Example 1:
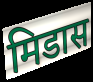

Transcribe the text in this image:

मिडास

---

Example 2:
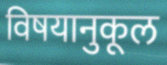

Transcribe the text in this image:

विषयानुकूल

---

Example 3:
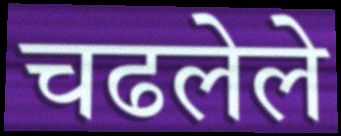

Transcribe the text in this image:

चढलेले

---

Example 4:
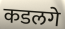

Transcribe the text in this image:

कडलगे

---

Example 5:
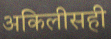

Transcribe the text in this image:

अकिलीसही